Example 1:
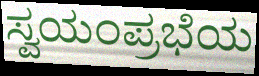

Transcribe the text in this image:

ಸ್ವಯಂಪ್ರಭೆಯ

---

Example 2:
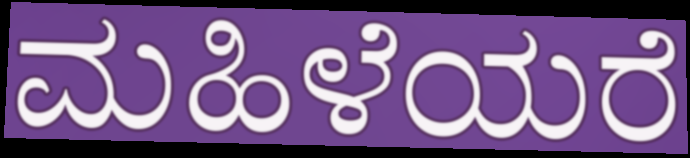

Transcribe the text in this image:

ಮಹಿಳೆಯರೆ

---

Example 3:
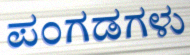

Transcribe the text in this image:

ಪಂಗಡಗಳು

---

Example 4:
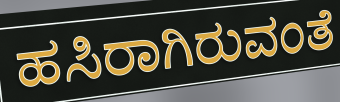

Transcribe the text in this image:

ಹಸಿರಾಗಿರುವಂತೆ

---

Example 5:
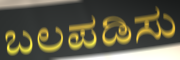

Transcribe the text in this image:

ಬಲಪಡಿಸು